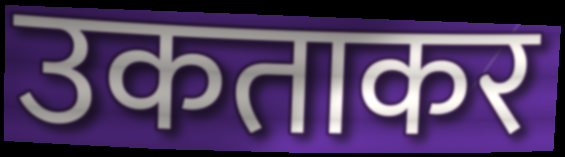
उकताकर